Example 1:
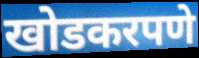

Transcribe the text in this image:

खोडकरपणे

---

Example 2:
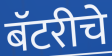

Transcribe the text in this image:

बॅटरीचे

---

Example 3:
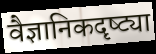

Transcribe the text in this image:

वैज्ञानिकदृष्ट्या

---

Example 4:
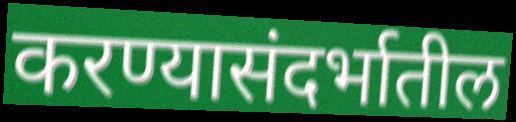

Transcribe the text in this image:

करण्यासंदर्भातील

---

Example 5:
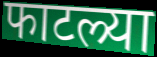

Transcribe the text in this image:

फाटल्या